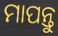
ମାପନ୍ତୁ